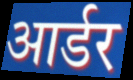
आर्डर